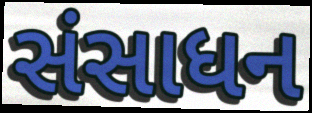
સંસાધન